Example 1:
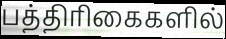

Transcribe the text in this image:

பத்திரிகைகளில்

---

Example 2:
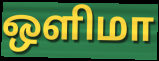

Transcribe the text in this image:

ஒளிமா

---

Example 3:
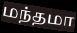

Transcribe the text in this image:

மந்தமா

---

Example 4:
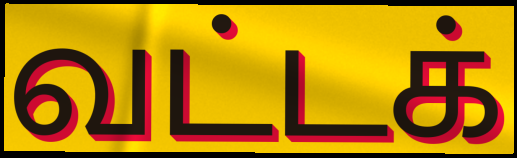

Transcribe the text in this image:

வட்டக்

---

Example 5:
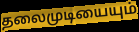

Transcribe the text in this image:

தலைமுடியையும்